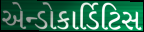
એન્ડોકાર્ડિટિસ